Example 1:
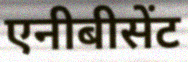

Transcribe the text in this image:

एनीबीसेंट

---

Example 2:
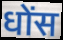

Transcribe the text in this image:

धोंस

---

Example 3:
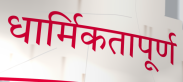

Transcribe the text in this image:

धार्मिकतापूर्ण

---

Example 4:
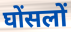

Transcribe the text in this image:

घोंसलों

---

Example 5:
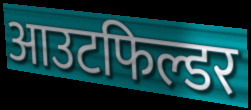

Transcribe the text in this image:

आउटफिल्डर